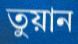
তুয়ান